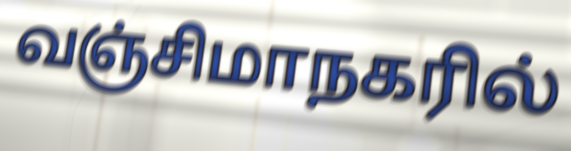
வஞ்சிமாநகரில்